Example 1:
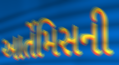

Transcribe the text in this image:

આર્તેમિસની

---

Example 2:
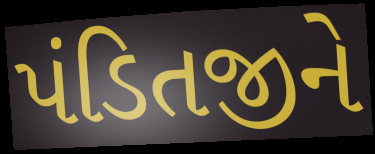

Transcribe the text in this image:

પંડિતજીને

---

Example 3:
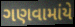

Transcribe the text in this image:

ગણવામાંયે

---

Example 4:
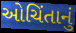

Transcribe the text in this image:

ઓચિંતાનું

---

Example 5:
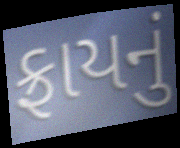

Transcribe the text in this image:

ફ્રાયનું